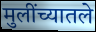
मुलींच्यातले